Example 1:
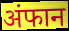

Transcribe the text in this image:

अंफान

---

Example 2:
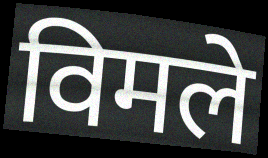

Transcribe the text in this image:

विमले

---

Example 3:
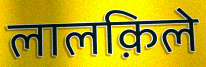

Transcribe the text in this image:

लालक़िले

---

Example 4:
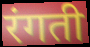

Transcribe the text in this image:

रंगती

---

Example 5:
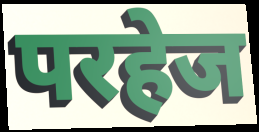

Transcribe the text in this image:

परहेज